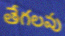
తేగలవు